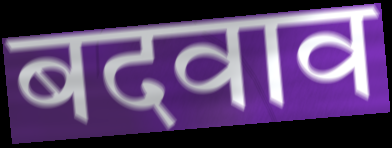
बदवाव